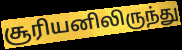
சூரியனிலிருந்து